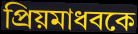
প্রিয়মাধবকে